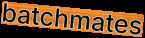
batchmates